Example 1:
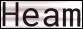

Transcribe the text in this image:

Heam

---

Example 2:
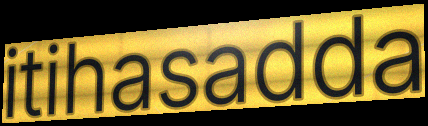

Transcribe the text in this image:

itihasadda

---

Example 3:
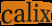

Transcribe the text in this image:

calix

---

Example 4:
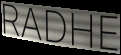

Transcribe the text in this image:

RADHE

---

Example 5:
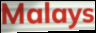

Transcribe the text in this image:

Malays